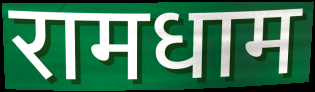
रामधाम